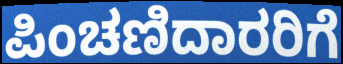
ಪಿಂಚಣಿದಾರರಿಗೆ